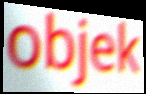
objek